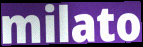
milato